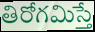
తిరోగమిస్తే